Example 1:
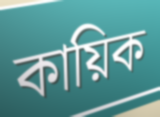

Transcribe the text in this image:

কায়িক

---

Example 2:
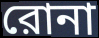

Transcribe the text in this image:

রোনা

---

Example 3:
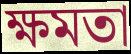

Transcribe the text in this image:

ক্ষমতা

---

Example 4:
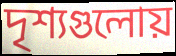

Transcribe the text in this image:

দৃশ্যগুলোয়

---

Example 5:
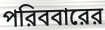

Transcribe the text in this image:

পরিববারের